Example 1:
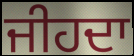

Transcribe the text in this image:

ਜੀਹਦਾ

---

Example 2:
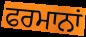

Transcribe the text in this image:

ਫਰਮਾਨਾਂ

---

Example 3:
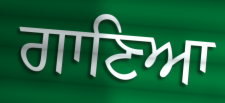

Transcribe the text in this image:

ਗਾਣਿਆ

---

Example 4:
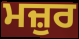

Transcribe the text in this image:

ਮਜ਼ੁਰ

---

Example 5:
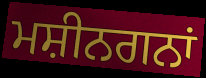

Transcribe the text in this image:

ਮਸ਼ੀਨਗਨਾਂ